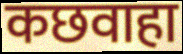
कछवाहा